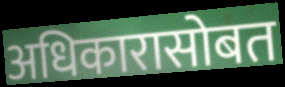
अधिकारासोबत